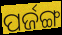
ପର୍ଜଙ୍ଗ